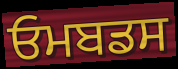
ਓਮਬਡਸ